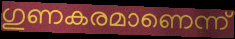
ഗുണകരമാണെന്ന്